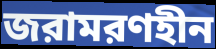
জরামরণহীন